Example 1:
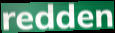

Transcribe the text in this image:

redden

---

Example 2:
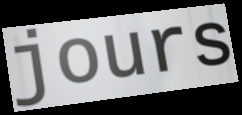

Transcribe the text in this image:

jours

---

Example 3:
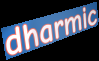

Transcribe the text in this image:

dharmic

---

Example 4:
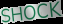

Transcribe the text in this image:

SHOCK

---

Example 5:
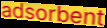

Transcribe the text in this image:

adsorbent